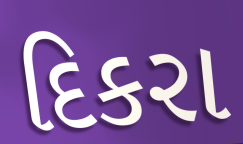
દિકરા